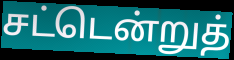
சட்டென்றுத்